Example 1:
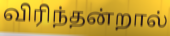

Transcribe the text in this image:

விரிந்தன்றால்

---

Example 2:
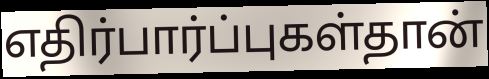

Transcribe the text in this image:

எதிர்பார்ப்புகள்தான்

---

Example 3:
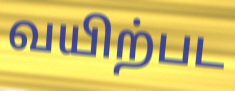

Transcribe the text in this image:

வயிற்பட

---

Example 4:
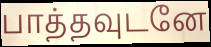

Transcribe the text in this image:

பாத்தவுடனே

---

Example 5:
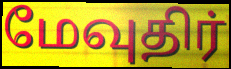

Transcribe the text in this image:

மேவுதிர்